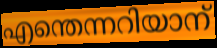
എന്തെന്നറിയാന്